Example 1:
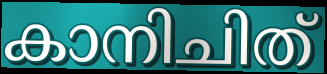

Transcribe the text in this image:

കാനിചിത്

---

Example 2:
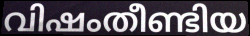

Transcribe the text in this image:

വിഷംതീണ്ടിയ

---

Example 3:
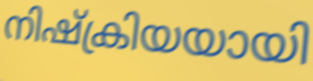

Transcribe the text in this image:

നിഷ്ക്രിയയായി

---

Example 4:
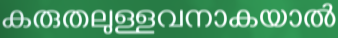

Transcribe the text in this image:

കരുതലുള്ളവനാകയാൽ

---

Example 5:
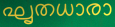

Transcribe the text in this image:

ഘൃതധാരാ